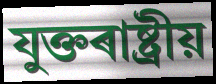
যুক্তৰাষ্ট্ৰীয়